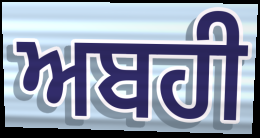
ਅਬਹੀ